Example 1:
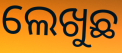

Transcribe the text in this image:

ଲେଖୁଛ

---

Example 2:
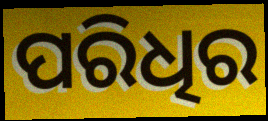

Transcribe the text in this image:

ପରିଧିର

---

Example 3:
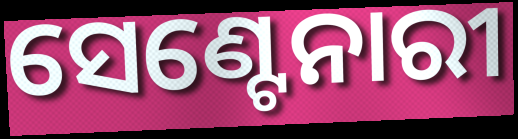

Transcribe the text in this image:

ସେଣ୍ଟେନାରୀ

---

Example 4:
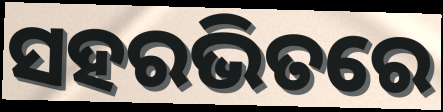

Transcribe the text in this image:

ସହରଭିତରେ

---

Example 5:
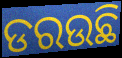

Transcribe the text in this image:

ଡରଉଛି